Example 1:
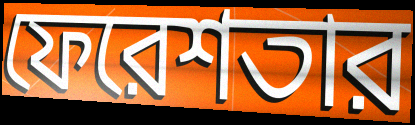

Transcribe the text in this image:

ফেরেশতার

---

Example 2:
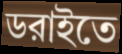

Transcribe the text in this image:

ডরাইতে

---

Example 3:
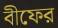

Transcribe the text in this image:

বীফের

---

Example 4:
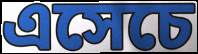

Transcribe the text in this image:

এসেচে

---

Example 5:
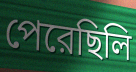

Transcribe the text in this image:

পেরেছিলি